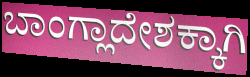
ಬಾಂಗ್ಲಾದೇಶಕ್ಕಾಗಿ